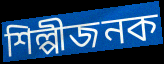
শিল্পীজনক